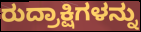
ರುದ್ರಾಕ್ಷಿಗಳನ್ನು